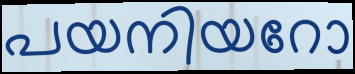
പയനിയറോ